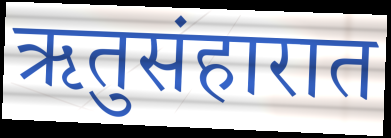
ऋतुसंहारात